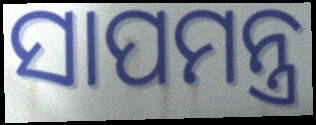
ସାପମନ୍ତ୍ର